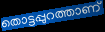
തൊട്ടപ്പുറത്താണ്